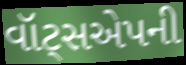
વૉટ્સએપની